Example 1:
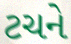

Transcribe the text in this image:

ટચને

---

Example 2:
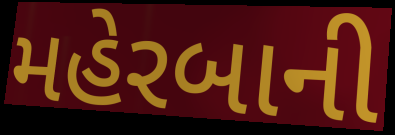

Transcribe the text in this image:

મહેરબાની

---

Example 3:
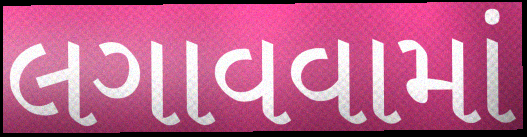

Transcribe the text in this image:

લગાવવામાં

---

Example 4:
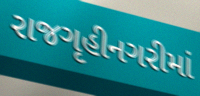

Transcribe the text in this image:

રાજગૃહીનગરીમાં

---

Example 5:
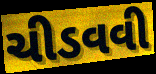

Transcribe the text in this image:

ચીડવવી